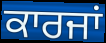
ਕਾਰਜਾਂ